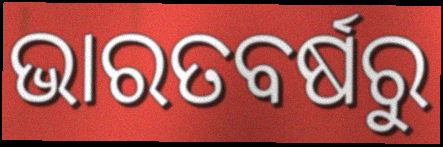
ଭାରତବର୍ଷରୁ